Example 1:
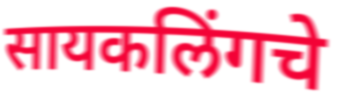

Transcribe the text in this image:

सायकलिंगचे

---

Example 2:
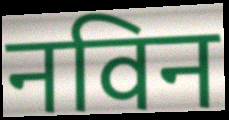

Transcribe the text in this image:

नविन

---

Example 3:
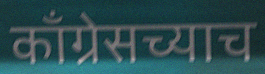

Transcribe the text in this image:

काँग्रेसच्याच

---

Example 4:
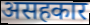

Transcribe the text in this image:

असहकार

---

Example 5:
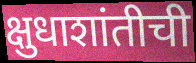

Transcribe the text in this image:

क्षुधाशांतीची